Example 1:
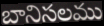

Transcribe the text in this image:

బానిసలము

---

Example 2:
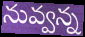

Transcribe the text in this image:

నువ్వన్న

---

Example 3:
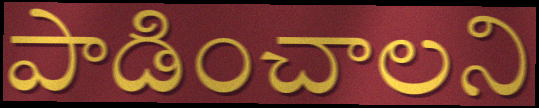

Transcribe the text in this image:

పాడించాలని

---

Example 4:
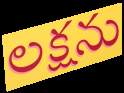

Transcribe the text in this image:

లక్షను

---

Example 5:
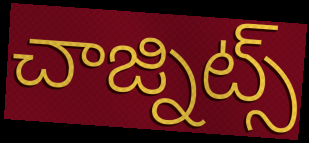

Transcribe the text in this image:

చాజ్నిట్స్